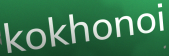
kokhonoi